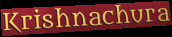
Krishnachura